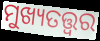
ମୁଖ୍ୟତତ୍ତ୍ୱର